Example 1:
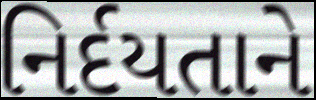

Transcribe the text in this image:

નિર્દયતાને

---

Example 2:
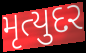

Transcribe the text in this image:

મૃત્યુદર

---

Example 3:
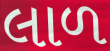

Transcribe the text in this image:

લાળ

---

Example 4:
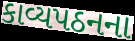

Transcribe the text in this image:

કાવ્યપઠનના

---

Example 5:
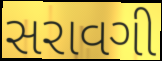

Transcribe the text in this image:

સરાવગી